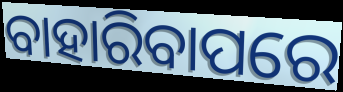
ବାହାରିବାପରେ